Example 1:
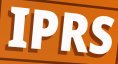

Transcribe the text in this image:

IPRS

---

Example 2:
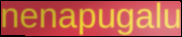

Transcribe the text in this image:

nenapugalu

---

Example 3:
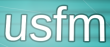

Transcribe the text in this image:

usfm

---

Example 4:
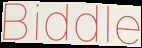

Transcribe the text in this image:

Biddle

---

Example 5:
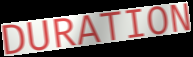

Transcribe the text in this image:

DURATION